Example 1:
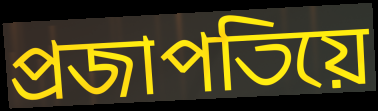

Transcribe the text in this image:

প্ৰজাপতিয়ে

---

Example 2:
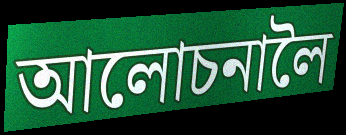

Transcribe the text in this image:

আলোচনালৈ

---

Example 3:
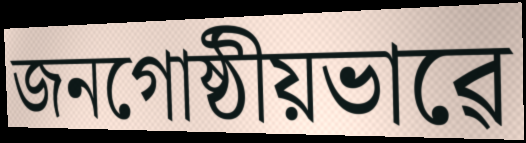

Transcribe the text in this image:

জনগোষ্ঠীয়ভাৱে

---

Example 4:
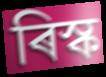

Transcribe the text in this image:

ৰিস্ক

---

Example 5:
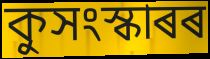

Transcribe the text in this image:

কুসংস্কাৰৰ